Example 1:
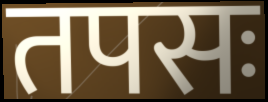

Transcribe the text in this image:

तपसः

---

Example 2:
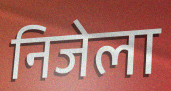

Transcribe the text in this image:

निजेला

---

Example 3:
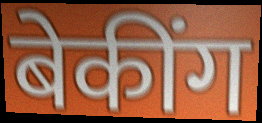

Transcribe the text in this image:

बेकींग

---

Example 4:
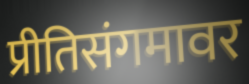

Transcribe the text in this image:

प्रीतिसंगमावर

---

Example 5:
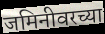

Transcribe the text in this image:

जमिनीवरच्या